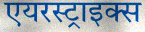
एयरस्ट्राइक्स